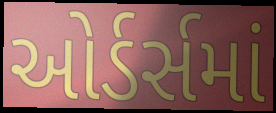
ઓર્ડર્સમાં